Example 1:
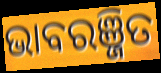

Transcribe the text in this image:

ଭାବରଞ୍ଜିତ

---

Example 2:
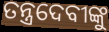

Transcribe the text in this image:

ତନ୍ତ୍ରଦେବୀଙ୍କୁ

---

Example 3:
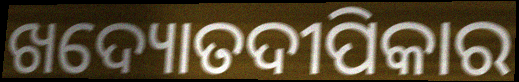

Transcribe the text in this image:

ଖଦ୍ୟୋତଦୀପିକାର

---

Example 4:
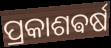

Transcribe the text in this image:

ପ୍ରକାଶଵର୍ଷ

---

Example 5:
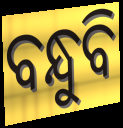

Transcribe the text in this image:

ବନ୍ଧୁବି